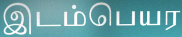
இடம்பெயர